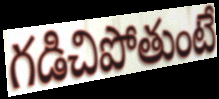
గడిచిపోతుంటే